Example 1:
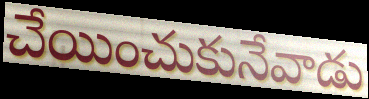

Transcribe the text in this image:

చేయించుకునేవాడు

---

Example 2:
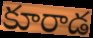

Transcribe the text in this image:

కూరాడ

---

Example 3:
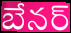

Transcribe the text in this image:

బేనర్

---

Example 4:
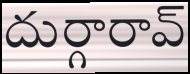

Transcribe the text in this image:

దుర్గారావ్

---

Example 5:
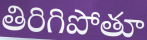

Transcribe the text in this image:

తిరిగిపోతూ